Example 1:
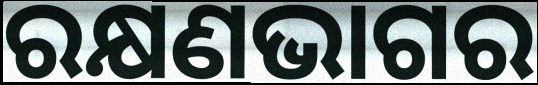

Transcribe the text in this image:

ରକ୍ଷଣଭାଗର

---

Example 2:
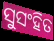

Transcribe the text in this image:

ସୁସଂହିତ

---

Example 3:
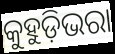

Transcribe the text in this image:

କୁହୁଡ଼ିଭରା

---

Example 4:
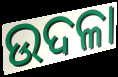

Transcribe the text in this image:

ଉଦଳା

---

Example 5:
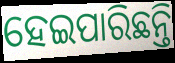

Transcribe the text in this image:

ହେଇପାରିଛନ୍ତି